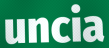
uncia